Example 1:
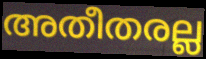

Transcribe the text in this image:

അതീതരല്ല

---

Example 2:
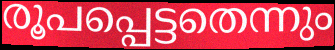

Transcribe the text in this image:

രൂപപ്പെട്ടതെന്നും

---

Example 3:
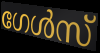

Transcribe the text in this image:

ഗേൾസ്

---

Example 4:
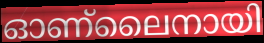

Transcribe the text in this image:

ഓണ്ലൈനായി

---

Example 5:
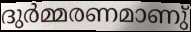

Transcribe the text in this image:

ദുർമ്മരണമാണു്